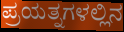
ಪ್ರಯತ್ನಗಳಲ್ಲಿನ